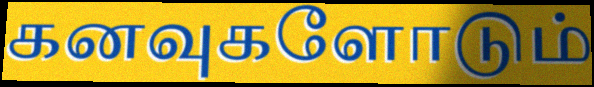
கனவுகளோடும்